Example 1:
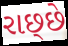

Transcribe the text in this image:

રાછ્છે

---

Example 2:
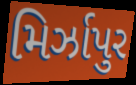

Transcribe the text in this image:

મિર્ઝાપુર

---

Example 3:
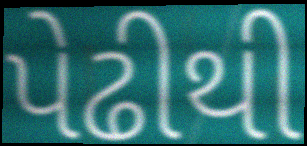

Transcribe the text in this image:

પેઢીથી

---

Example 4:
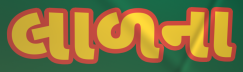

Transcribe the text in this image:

લાળના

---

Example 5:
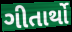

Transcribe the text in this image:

ગીતાર્થો